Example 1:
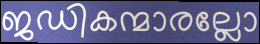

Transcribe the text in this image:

ജഡികന്മാരല്ലോ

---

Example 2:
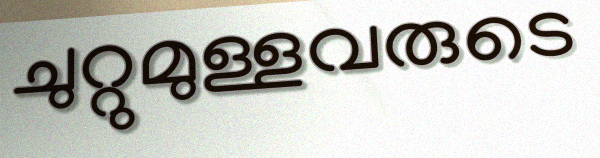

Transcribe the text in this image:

ചുറ്റുമുള്ളവരുടെ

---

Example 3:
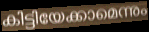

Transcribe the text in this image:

കിട്ടിയേക്കാമെന്നും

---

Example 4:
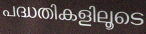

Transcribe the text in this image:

പദ്ധതികളിലൂടെ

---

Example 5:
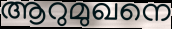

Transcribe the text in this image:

ആറുമുഖനെ